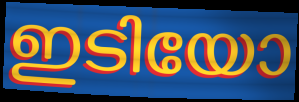
ഇടിയോ